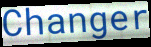
Changer